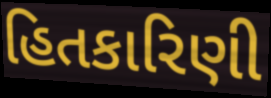
હિતકારિણી